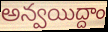
అన్వయిద్దాం